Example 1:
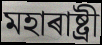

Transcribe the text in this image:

মহাৰাষ্ট্ৰী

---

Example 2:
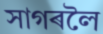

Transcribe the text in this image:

সাগৰলৈ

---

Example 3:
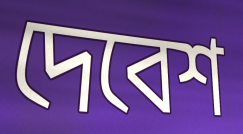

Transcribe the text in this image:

দেবেশ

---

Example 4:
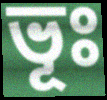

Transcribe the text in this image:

ভূঃ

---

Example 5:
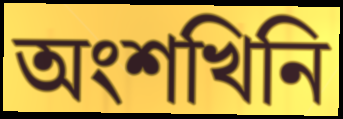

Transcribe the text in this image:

অংশখিনি